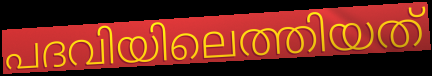
പദവിയിലെത്തിയത്